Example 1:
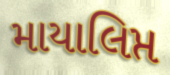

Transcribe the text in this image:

માયાલિપ્ત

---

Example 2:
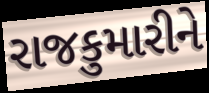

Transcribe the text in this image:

રાજકુમારીને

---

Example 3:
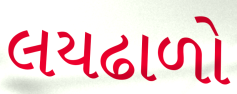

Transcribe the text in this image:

લયઢાળો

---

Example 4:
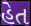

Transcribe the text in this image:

હેત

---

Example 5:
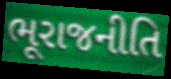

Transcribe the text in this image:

ભૂરાજનીતિ